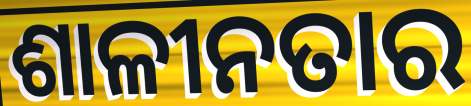
ଶାଳୀନତାର